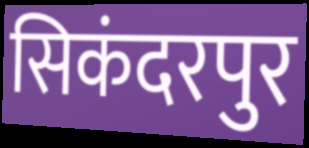
सिकंदरपुर